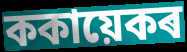
ককায়েকৰ